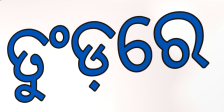
ତୁଂଡ଼ରେ